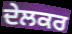
ਦੇਲਕਰ